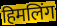
हिमलिंग